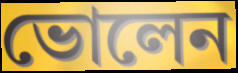
ভোলেন